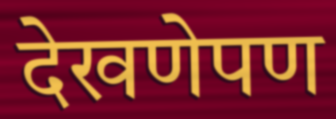
देखणेपण